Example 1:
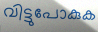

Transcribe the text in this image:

വിട്ടുപോകുക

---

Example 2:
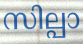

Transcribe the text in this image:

സില്പാ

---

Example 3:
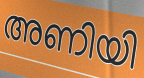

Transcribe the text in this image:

അണിയി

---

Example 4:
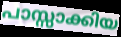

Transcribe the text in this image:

പാസ്സാക്കിയ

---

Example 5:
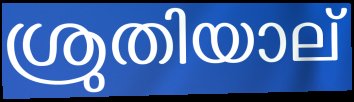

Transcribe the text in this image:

ശ്രുതിയാല്